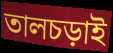
তালচড়াই